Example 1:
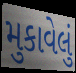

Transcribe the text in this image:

મુકાવેલું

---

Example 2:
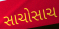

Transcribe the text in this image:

સાચોસાચ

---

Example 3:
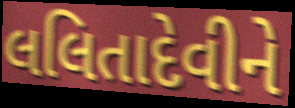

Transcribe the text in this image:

લલિતાદેવીને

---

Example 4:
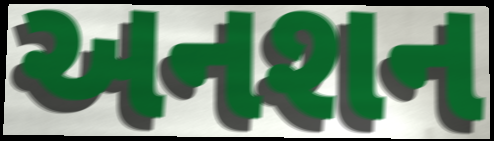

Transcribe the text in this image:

અનશન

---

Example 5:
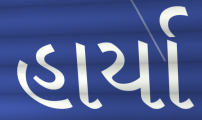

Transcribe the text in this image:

હાર્યા